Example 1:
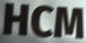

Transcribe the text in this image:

HCM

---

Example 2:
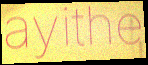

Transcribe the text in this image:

ayithe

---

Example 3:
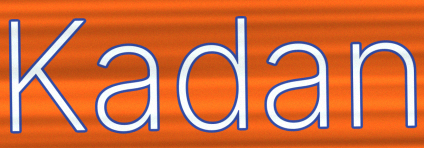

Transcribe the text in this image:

Kadan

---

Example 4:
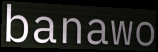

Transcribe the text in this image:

banawo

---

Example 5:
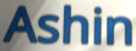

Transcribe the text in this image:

Ashin